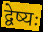
द्वेष्यः